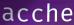
acche